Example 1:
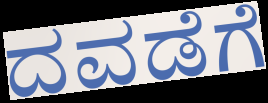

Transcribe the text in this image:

ದವಡೆಗೆ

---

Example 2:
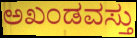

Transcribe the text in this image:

ಅಖಂಡವಸ್ತು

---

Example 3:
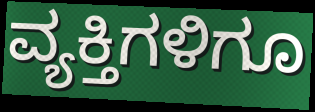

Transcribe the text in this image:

ವ್ಯಕ್ತಿಗಳಿಗೂ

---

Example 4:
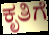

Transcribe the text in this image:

ಕೃತಿಗೆ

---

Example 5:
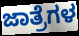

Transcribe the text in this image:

ಜಾತ್ರೆಗಳ